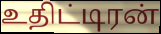
உதிட்டிரன்